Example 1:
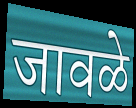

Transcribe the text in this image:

जावळे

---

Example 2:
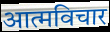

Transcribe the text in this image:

आत्मविचार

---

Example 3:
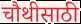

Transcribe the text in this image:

चौथीसाठी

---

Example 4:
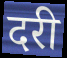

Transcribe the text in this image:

दरी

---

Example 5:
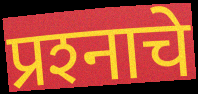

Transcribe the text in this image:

प्रश्‍नाचे